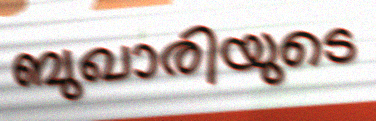
ബുഖാരിയുടെ